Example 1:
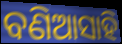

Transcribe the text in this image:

ବଣିଆସାହି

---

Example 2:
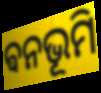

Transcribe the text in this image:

ଵନଭୂମି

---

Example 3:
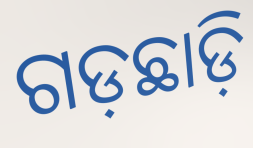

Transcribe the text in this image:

ଗଡ଼ଛାଡ଼ି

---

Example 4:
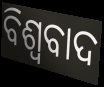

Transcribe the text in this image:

ବିଶ୍ୱବାଦ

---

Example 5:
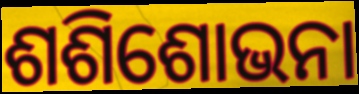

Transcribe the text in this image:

ଶଶିଶୋଭନା